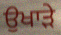
ਉਖਾੜੇ